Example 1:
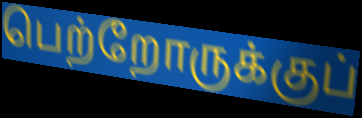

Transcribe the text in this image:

பெற்றோருக்குப்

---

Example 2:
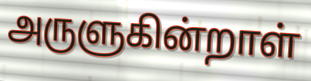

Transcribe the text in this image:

அருளுகின்றாள்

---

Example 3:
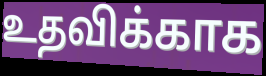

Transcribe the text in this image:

உதவிக்காக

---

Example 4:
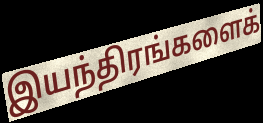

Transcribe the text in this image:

இயந்திரங்களைக்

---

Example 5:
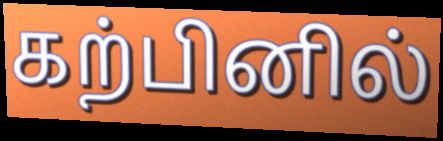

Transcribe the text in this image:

கற்பினில்